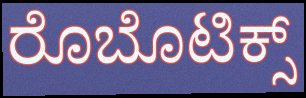
ರೊಬೊಟಿಕ್ಸ್